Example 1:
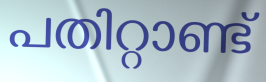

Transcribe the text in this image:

പതിറ്റാണ്ട്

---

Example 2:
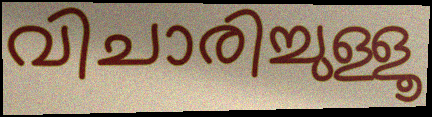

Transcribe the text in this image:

വിചാരിച്ചുള്ളൂ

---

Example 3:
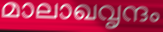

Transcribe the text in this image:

മാലാഖവൃന്ദം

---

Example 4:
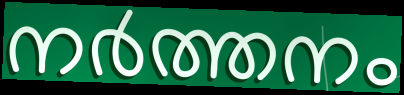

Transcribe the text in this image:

നർത്തനം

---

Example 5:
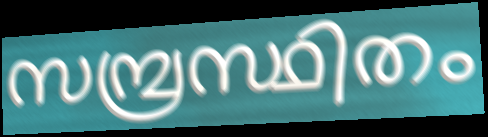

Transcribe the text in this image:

സമ്പ്രസ്ഥിതം